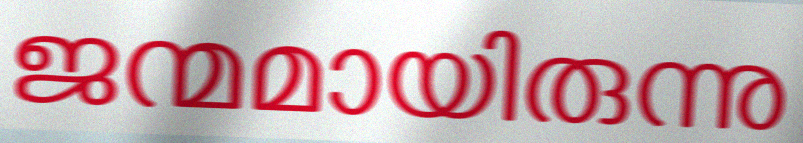
ജന്മമായിരുന്നു